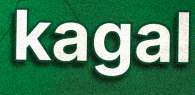
kagal